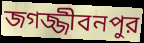
জগজ্জীবনপুর